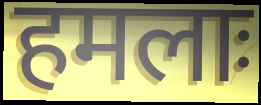
हमलाः